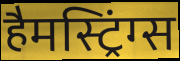
हैमस्ट्रिंग्स